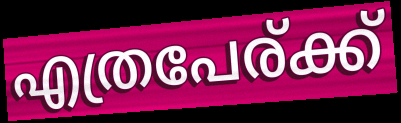
എത്രപേര്ക്ക്